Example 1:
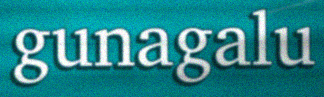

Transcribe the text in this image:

gunagalu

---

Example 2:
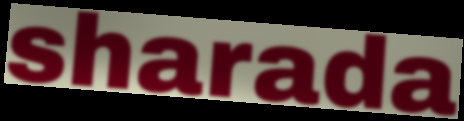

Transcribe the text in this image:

sharada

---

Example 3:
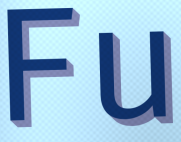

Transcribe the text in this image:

Fu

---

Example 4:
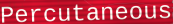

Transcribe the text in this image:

Percutaneous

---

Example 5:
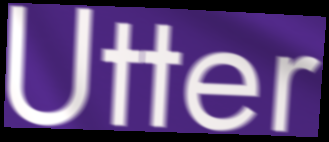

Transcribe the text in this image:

Utter